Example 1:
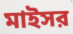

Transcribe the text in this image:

মাইসর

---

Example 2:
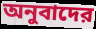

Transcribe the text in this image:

অনুবাদের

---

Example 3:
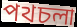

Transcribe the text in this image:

পথচলা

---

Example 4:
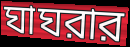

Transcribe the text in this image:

ঘাঘরার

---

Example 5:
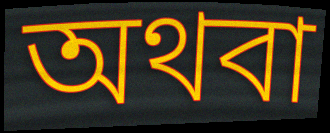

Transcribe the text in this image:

অথবা